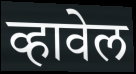
व्हावेल